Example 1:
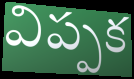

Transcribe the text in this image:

విప్పక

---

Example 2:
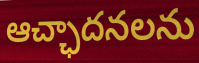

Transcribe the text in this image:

ఆచ్ఛాదనలను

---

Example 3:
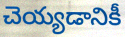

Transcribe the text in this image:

చెయ్యడానికీ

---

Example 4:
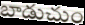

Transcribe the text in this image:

బాడుచుం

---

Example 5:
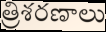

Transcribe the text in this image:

త్రిశరణాలు